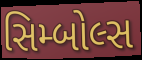
સિમ્બોલ્સ